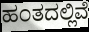
ಹಂತದಲ್ಲಿವೆ